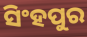
ସିଂହପୁର